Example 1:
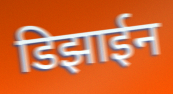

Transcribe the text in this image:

डिझाईन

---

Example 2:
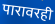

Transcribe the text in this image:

पारावरही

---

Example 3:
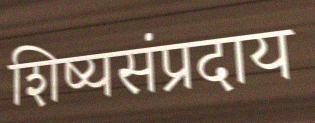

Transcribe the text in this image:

शिष्यसंप्रदाय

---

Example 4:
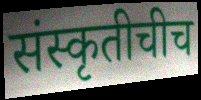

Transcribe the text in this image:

संस्कृतीचीच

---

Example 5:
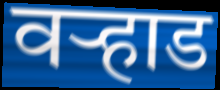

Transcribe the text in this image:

वऱ्हाड